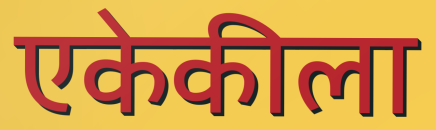
एकेकीला